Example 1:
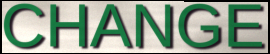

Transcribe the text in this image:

CHANGE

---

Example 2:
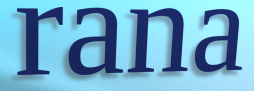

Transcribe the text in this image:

rana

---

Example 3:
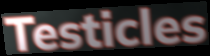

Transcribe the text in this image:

Testicles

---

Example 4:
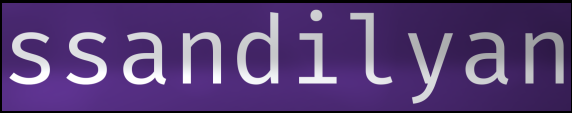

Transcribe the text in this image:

ssandilyan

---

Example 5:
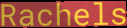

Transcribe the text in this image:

Rachels